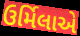
ઉર્મિલાએ